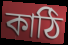
কাঠি